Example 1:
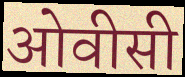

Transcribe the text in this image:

ओवीसी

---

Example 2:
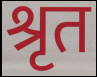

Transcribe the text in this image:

श्रृत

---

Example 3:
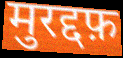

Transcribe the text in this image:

मुरद्दफ़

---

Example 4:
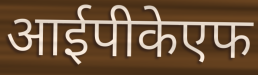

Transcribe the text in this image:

आईपीकेएफ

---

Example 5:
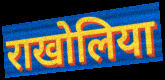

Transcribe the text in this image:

राखोलिया